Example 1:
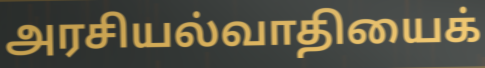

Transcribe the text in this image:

அரசியல்வாதியைக்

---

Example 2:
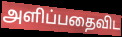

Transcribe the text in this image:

அளிப்பதைவிட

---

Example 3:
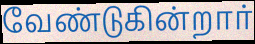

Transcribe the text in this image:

வேண்டுகின்றார்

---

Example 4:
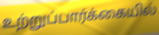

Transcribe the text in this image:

உற்றுப்பார்க்கையில்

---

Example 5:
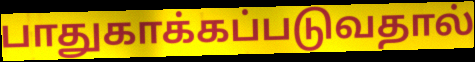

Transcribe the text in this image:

பாதுகாக்கப்படுவதால்